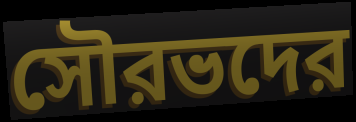
সৌরভদের